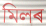
মিলৰ